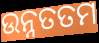
ଉନ୍ନତତମ